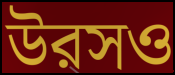
উরসও